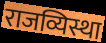
राजव्यिस्था